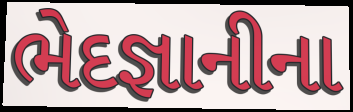
ભેદજ્ઞાનીના